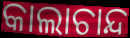
କାଲାଚାନ୍ଦ